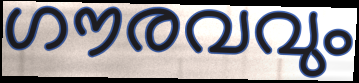
ഗൗരവവും